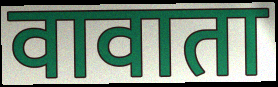
वावाता